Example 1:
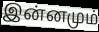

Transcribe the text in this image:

இன்னமும்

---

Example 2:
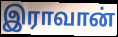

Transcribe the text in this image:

இராவான்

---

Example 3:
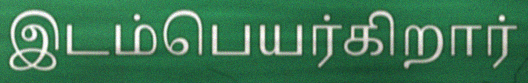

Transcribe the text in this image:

இடம்பெயர்கிறார்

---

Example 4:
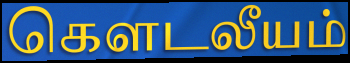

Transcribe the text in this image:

கெளடலீயம்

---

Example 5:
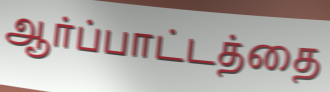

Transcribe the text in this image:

ஆர்ப்பாட்டத்தை